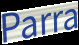
Parra